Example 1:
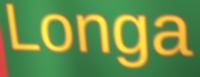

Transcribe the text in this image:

Longa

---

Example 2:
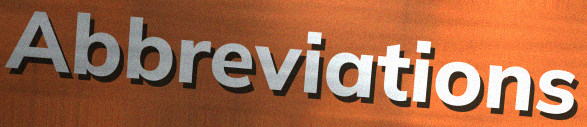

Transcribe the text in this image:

Abbreviations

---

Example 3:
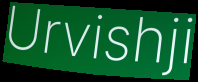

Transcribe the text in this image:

Urvishji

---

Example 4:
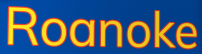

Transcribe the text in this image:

Roanoke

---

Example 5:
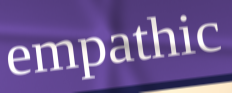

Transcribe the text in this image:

empathic